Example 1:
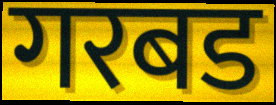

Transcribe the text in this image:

गरबड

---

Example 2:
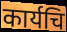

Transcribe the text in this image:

कार्यचि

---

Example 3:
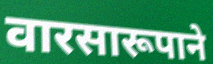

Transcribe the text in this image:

वारसारूपाने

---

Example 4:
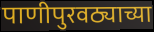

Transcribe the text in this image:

पाणीपुरवठ्याच्या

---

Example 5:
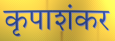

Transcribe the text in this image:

कृपाशंकर